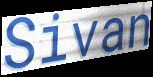
Sivan